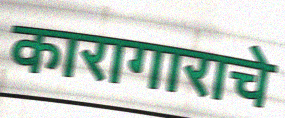
कारागाराचे